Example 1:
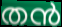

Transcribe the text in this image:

തൻ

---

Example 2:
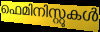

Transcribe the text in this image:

ഫെമിനിസ്റ്റുകൾ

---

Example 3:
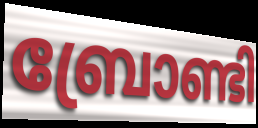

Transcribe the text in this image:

ബ്രോണ്ടി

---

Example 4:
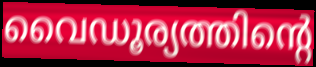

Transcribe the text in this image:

വൈഡൂര്യത്തിന്റെ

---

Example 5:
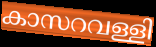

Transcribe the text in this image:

കാസറവള്ളി